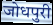
जोधपुरी